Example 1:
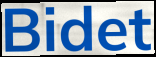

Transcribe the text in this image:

Bidet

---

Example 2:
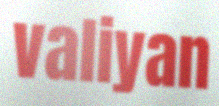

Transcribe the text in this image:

valiyan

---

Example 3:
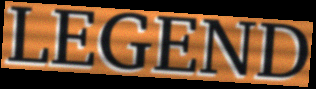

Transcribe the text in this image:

LEGEND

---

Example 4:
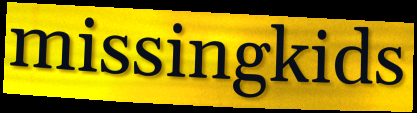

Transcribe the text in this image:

missingkids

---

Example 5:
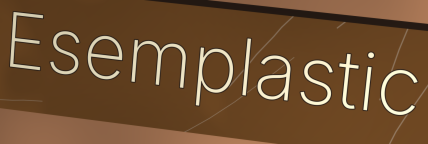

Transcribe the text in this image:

Esemplastic